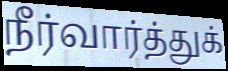
நீர்வார்த்துக்